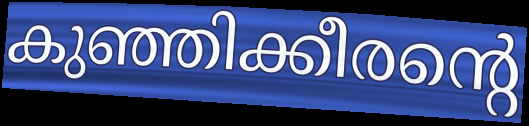
കുഞ്ഞിക്കീരന്റെ